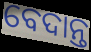
ବେଦାନ୍ତ